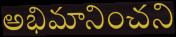
అభిమానించని